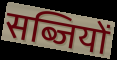
सब्जियों